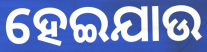
ହେଇଯାଉ